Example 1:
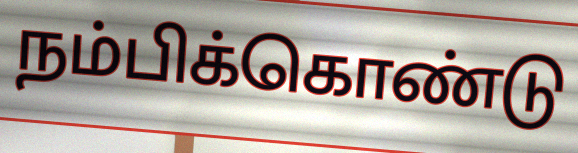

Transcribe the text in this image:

நம்பிக்கொண்டு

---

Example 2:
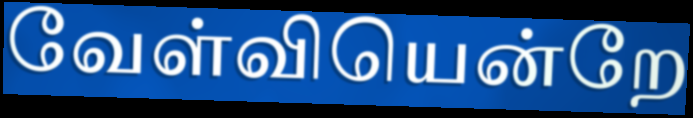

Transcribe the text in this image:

வேள்வியென்றே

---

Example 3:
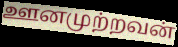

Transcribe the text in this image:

ஊனமுற்றவன்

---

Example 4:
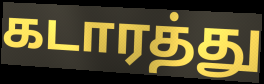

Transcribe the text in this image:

கடாரத்து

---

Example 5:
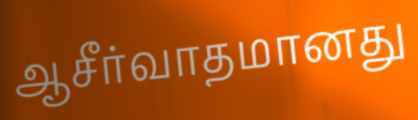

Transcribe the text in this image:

ஆசீர்வாதமானது